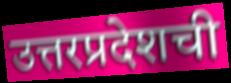
उत्तरप्रदेशची